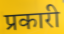
प्रकारी